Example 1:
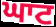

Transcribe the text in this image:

ਘਾਟ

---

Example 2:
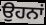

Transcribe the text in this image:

ਉਹਨਾਂ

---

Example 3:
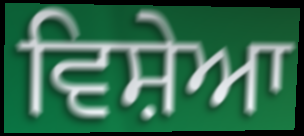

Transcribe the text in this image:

ਵਿਸ਼ੇਆ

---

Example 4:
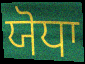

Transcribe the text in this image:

ਯੋਧਾ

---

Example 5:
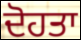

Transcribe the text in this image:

ਦੋਹਤਾ